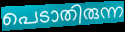
പെടാതിരുന്ന